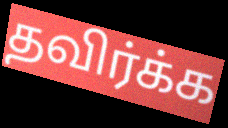
தவிர்க்க